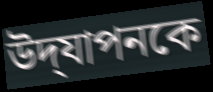
উদ্‌যাপনকে